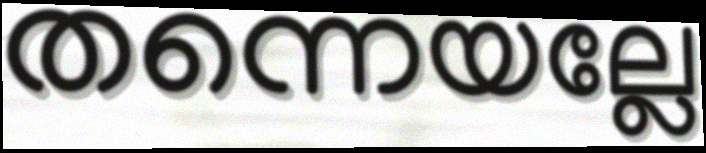
തന്നെയല്ലേ